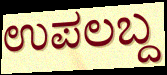
ಉಪಲಬ್ದ